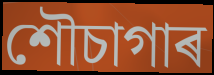
শৌচাগাৰ